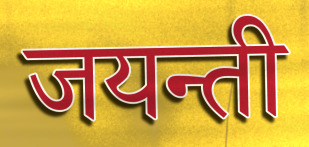
जयन्ती